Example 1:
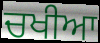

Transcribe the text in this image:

ਚਖੀਆ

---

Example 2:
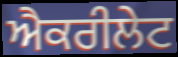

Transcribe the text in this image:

ਐਕਰੀਲੇਟ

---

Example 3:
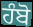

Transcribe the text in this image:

ਹੰਬੋ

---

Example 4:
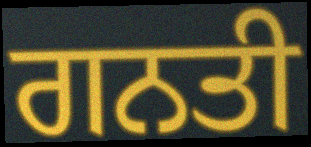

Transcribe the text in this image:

ਗਨਤੀ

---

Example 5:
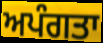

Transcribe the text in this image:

ਅਪੰਗਤਾ